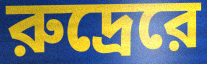
রুদ্রেরে